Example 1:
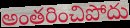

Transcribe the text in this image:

అంతరించిపోదు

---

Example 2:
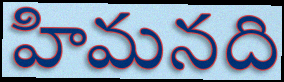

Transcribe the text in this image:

హిమనది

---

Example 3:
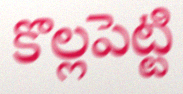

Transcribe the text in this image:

కొల్లపెట్టి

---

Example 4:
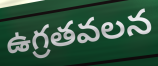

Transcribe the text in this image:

ఉగ్రతవలన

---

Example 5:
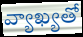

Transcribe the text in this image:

వ్యాఖ్యతో